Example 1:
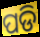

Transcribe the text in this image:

ପଡି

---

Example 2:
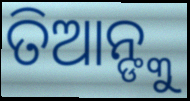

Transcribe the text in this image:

ତିଆନ୍ଙ୍କୁ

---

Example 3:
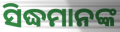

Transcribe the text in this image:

ସିଦ୍ଧମାନଙ୍କ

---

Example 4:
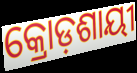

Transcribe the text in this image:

କ୍ରୋଡ଼ଶାୟୀ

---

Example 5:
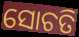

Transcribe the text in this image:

ସୋଚତି